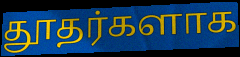
தூதர்களாக